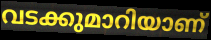
വടക്കുമാറിയാണ്